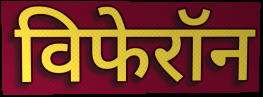
विफेरॉन